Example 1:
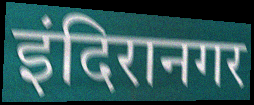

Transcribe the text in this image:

इंदिरानगर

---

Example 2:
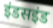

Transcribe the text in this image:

इंडसइंड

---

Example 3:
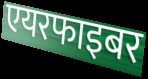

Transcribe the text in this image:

एयरफाइबर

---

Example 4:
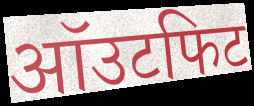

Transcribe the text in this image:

ऑउटफिट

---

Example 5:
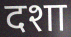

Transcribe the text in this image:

दशा